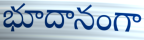
భూదానంగా